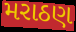
મરાઠણ